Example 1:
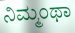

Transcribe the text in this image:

ನಿಮ್ಮಂಥಾ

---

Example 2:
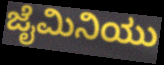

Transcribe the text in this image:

ಜೈಮಿನಿಯು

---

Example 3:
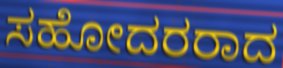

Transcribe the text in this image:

ಸಹೋದರರಾದ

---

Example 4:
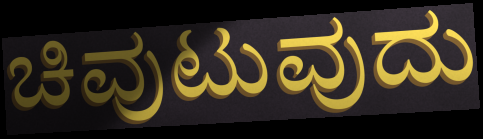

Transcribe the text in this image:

ಚಿವುಟುವುದು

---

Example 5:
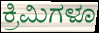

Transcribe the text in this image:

ಕ್ರಿಮಿಗಳೂ